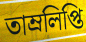
তাম্রলিপ্তি